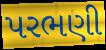
પરભણી